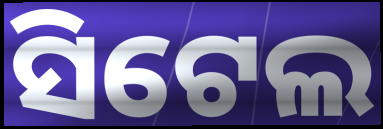
ସିଟେଲ